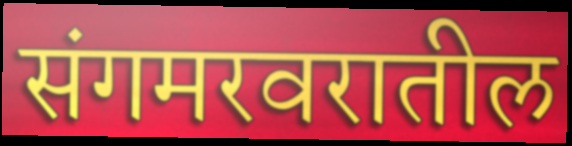
संगमरवरातील